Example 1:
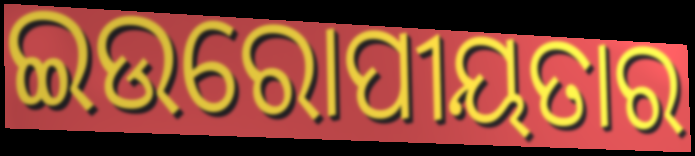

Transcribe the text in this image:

ଇଉରୋପୀୟତାର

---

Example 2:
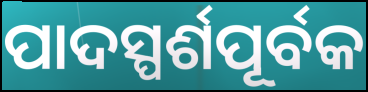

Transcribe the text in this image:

ପାଦସ୍ପର୍ଶପୂର୍ବକ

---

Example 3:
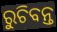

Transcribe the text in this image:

ରୁଚିବନ୍ତ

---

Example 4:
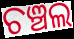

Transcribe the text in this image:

ଚଞ୍ଚଲ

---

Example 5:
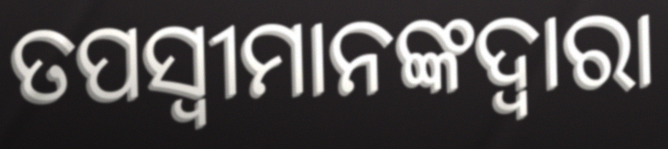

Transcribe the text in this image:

ତପସ୍ୱୀମାନଙ୍କଦ୍ୱାରା